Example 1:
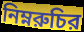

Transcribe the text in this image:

নিম্নরুচির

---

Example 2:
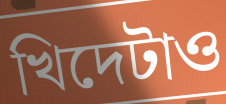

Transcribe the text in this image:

খিদেটাও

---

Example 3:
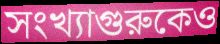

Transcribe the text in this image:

সংখ্যাগুরুকেও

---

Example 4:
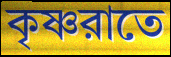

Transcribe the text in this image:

কৃষ্ণরাতে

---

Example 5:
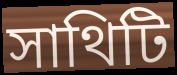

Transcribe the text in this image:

সাথিটি